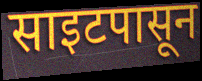
साइटपासून